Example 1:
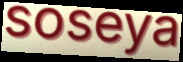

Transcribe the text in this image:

soseya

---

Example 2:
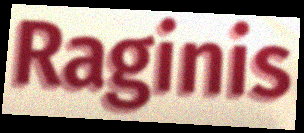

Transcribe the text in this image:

Raginis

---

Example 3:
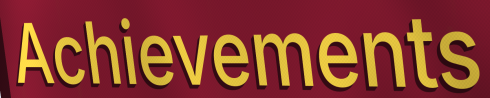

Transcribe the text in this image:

Achievements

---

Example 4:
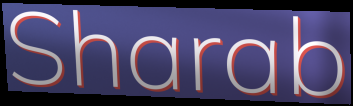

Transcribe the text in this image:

Sharab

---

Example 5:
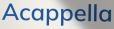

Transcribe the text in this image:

Acappella